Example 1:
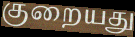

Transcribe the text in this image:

குறையது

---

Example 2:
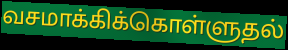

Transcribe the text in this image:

வசமாக்கிக்கொள்ளுதல்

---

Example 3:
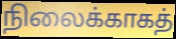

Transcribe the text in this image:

நிலைக்காகத்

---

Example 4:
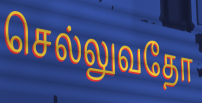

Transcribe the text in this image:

செல்லுவதோ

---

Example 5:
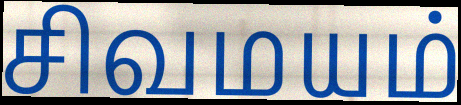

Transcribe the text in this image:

சிவமயம்